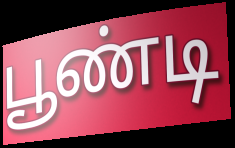
பூண்டி